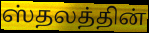
ஸ்தலத்தின்